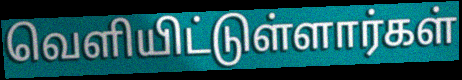
வெளியிட்டுள்ளார்கள்